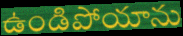
ఉండిపోయాను